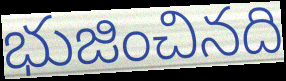
భుజించినది